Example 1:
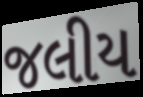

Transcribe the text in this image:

જલીય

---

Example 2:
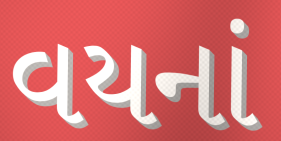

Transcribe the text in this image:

વયનાં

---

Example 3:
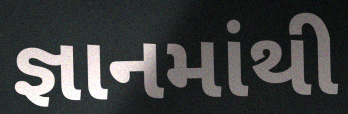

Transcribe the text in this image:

જ્ઞાનમાંથી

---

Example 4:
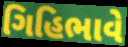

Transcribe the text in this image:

ગિહિભાવે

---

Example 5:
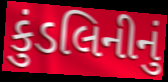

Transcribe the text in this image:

કુંડલિનીનું